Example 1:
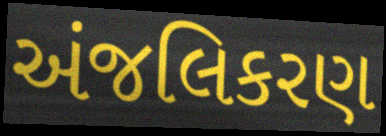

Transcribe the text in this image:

અંજલિકરણ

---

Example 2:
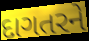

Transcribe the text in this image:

દાગતરને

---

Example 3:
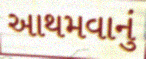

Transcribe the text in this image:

આથમવાનું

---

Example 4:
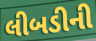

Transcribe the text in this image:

લીબડીની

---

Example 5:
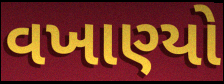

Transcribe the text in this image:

વખાણ્યો